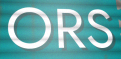
ORS